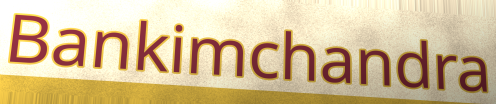
Bankimchandra